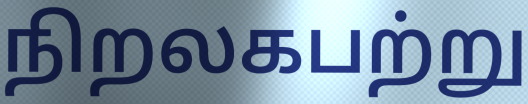
நிறலகபற்று